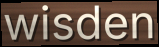
wisden